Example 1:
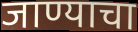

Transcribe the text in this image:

जाण्याचा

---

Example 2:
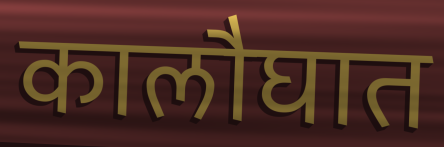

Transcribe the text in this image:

कालौघात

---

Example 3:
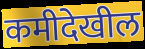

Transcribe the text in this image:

कमीदेखील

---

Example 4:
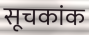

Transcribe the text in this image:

सूचकांक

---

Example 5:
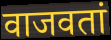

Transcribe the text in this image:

वाजवतां